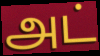
அட்